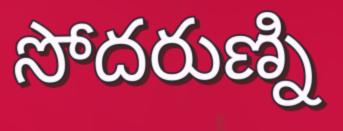
సోదరుణ్ని